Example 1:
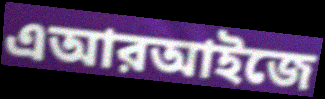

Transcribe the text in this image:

এআরআইজে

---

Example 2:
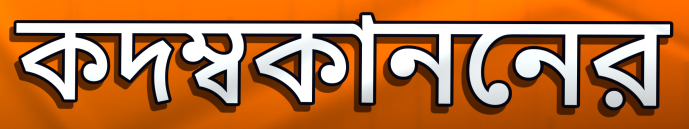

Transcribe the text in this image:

কদম্বকাননের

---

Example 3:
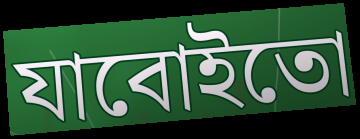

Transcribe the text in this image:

যাবোইতো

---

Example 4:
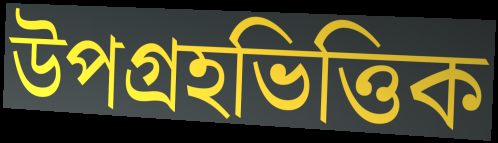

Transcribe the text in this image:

উপগ্রহভিত্তিক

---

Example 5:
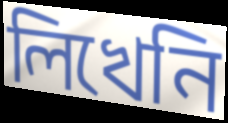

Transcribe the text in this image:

লিখেনি